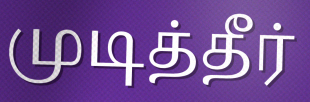
முடித்தீர்